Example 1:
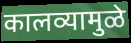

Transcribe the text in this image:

कालव्यामुळे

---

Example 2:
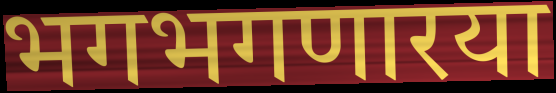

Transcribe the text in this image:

भगभगणारया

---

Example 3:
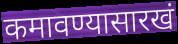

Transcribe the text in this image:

कमावण्यासारखं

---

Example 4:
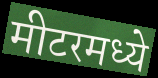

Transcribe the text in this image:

मीटरमध्ये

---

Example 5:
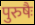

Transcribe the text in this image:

पुरुषैः